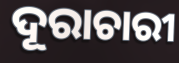
ଦୂରାଚାରୀ